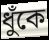
ধুঁকে